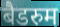
बैडरुम